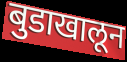
बुडाखालून